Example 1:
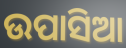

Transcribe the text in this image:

ଉପାସିଆ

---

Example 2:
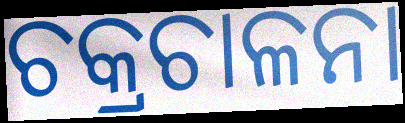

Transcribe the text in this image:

ଚକ୍ରଚାଳନା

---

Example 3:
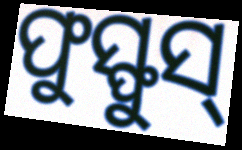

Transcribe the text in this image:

ଫୁସ୍ଫୁସ୍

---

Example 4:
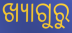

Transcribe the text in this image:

ଖ୍ୟାଗୁରୁ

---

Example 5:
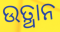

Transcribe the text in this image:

ଉତ୍ଥାନ